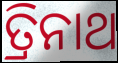
ତ୍ରିନାଥ